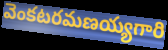
వెంకటరమణయ్యగారి